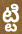
ట్టి